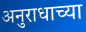
अनुराधाच्या